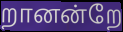
றானன்றே